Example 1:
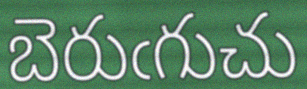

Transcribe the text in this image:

బెరుఁగుచు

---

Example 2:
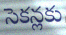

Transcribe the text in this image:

సెకన్లకు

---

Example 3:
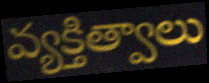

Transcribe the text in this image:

వ్యక్తిత్వాలు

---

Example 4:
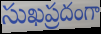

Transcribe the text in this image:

సుఖప్రదంగా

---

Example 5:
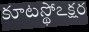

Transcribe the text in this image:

కూటస్థోఽక్షర